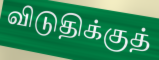
விடுதிக்குத்